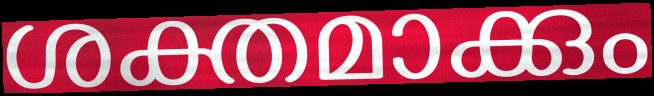
ശക്തമാക്കും